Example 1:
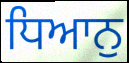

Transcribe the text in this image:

ਧਿਆਨੁ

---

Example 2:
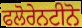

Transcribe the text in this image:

ਫਲੋਰੇਨਟੀਨੋ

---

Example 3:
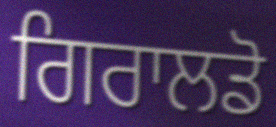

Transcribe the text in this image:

ਗਿਰਾਲਡੋ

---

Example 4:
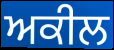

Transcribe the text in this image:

ਅਕੀਲ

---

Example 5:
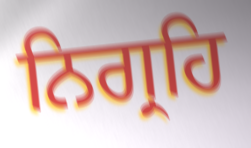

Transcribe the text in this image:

ਨਿਗ੍ਰਹਿ